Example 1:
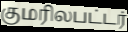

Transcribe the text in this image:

குமரிலபட்டர்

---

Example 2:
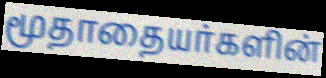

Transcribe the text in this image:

மூதாதையர்களின்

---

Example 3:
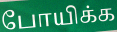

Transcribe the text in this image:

போயிக்க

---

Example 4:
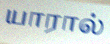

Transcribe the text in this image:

யாரால்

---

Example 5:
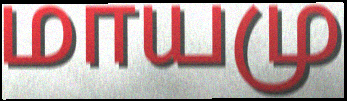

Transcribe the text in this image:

மாயமு